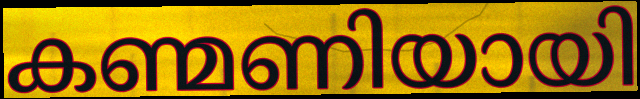
കണ്മണിയായി